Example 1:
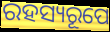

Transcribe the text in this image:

ରହସ୍ୟରୂପେ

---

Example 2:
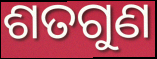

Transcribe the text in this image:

ଶତଗୁଣ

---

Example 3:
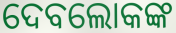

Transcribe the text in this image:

ଦେବଲୋକଙ୍କ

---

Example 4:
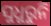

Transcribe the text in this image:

ସୁଧୁରୁନି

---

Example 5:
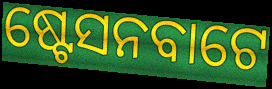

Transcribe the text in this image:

ଷ୍ଟେସନବାଟେ